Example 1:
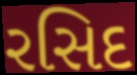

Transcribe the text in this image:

રસિદ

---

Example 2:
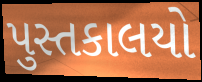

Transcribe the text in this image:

પુસ્તકાલયો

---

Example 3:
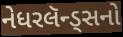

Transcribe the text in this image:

નેધરલૅન્ડ્સનો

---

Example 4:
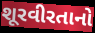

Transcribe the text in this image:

શૂરવીરતાનો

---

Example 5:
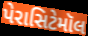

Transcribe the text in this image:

પેરાસિટેમૉલ